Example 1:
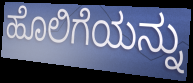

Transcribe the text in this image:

ಹೊಲಿಗೆಯನ್ನು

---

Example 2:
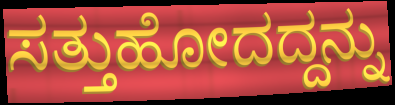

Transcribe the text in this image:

ಸತ್ತುಹೋದದ್ದನ್ನು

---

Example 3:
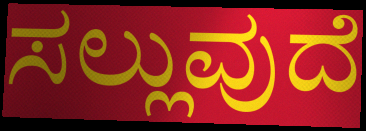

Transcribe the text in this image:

ಸಲ್ಲುವುದೆ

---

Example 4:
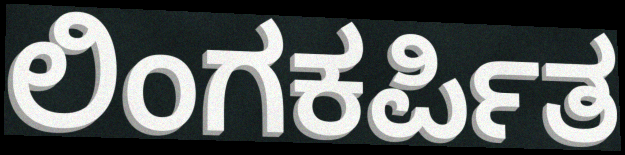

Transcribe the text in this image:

ಲಿಂಗಕರ್ಪಿತ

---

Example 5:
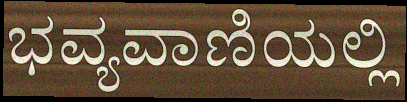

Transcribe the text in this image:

ಭವ್ಯವಾಣಿಯಲ್ಲಿ